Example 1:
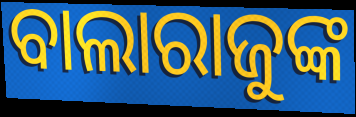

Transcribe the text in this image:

ବାଲାରାଜୁଙ୍କ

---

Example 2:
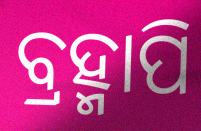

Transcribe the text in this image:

ବ୍ରହ୍ମାପି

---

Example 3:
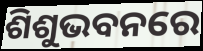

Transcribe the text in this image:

ଶିଶୁଭବନରେ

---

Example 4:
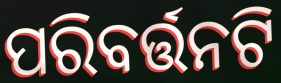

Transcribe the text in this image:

ପରିବର୍ତ୍ତନଟି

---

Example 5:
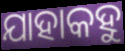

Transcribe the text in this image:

ଯାହାକହୁ